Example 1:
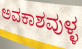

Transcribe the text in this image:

ಅವಕಾಶವುಳ್ಳ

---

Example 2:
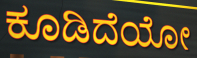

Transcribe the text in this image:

ಕೂಡಿದೆಯೋ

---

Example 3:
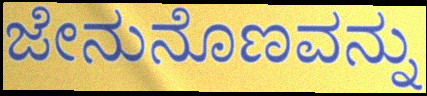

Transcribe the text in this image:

ಜೇನುನೊಣವನ್ನು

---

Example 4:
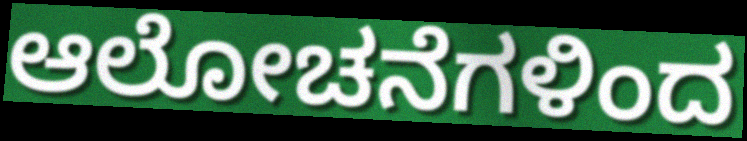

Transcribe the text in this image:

ಆಲೋಚನೆಗಳಿಂದ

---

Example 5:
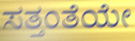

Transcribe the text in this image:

ಸತ್ತಂತೆಯೇ